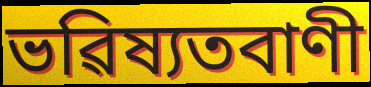
ভৱিষ্যতবাণী